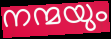
നന്മയും